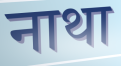
नाथा